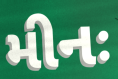
મીનઃ